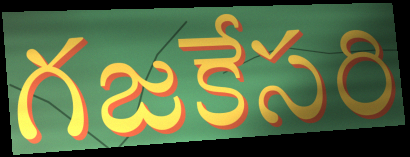
గజకేసరి